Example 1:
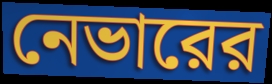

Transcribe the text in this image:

নেভারের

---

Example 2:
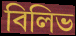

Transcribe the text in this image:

বিলিভ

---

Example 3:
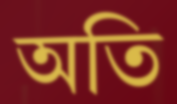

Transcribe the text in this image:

অতি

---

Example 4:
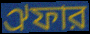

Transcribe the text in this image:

ঐফার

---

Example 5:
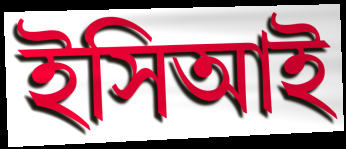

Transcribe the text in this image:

ইসিআই